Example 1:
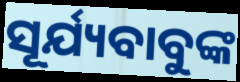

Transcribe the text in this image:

ସୂର୍ଯ୍ୟବାବୁଙ୍କ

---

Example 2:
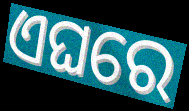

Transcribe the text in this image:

ଏଘରେ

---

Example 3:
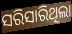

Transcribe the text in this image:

ସରିସାରିଥିଲା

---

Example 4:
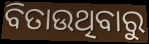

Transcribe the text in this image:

ବିତାଉଥିବାରୁ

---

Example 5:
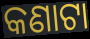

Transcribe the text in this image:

କଣାଟା